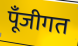
पूँजीगत